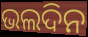
ଭଲଦିନ